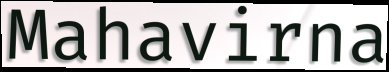
Mahavirna